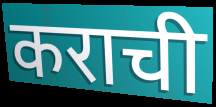
कराची